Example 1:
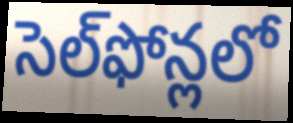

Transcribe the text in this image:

సెల్‌ఫోన్లలో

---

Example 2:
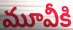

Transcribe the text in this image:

మూవీకి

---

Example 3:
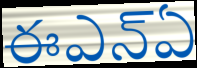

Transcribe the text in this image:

ఈఎన్ఏ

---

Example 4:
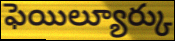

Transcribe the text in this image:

ఫెయిల్యూర్కు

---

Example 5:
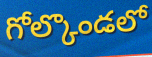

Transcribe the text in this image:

గోల్కొండలో